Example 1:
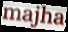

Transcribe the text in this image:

majha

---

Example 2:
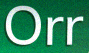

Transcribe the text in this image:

Orr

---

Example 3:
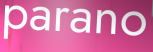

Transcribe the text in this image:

parano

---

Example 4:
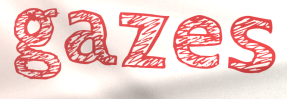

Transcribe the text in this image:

gazes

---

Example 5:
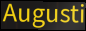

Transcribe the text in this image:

Augusti